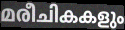
മരീചികകളും